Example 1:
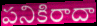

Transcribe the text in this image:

పనికిరాదా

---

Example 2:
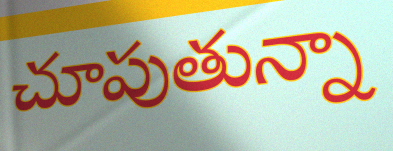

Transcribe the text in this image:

చూపుతున్నా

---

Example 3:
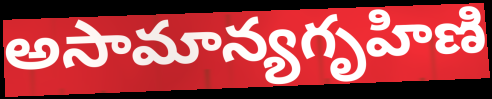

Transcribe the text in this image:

అసామాన్యగృహిణి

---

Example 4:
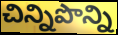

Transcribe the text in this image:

చిన్నిపొన్ని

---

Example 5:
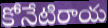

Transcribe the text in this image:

కోనేటిరాయ